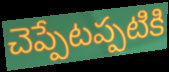
చెప్పేటప్పటికి